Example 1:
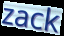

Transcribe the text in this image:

zack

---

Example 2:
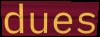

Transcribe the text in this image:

dues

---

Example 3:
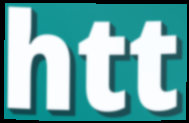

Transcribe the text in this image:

htt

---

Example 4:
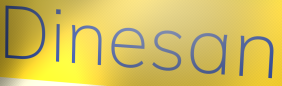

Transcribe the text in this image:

Dinesan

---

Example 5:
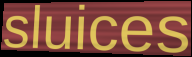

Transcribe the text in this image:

sluices